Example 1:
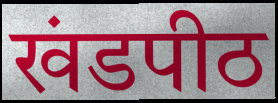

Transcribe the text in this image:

खंडपीठ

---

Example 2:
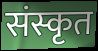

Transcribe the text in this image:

संस्‍कृत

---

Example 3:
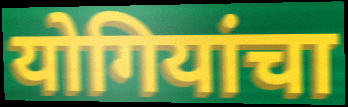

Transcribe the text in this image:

योगियांचा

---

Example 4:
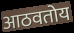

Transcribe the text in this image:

आठवतोय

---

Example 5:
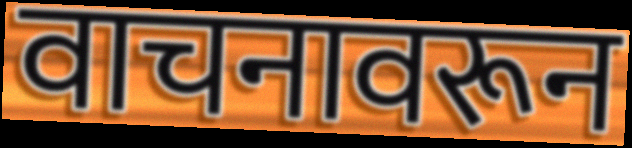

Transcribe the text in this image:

वाचनावरून